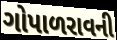
ગોપાળરાવની